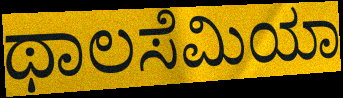
ಥಾಲಸೆಮಿಯಾ